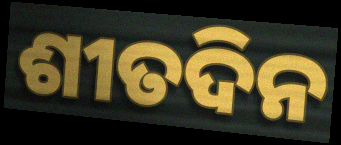
ଶୀତଦିନ